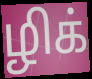
ழிக்